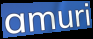
amuri